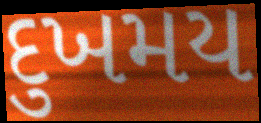
દુખમય